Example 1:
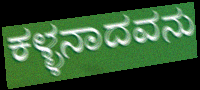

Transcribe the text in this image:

ಕಳ್ಳನಾದವನು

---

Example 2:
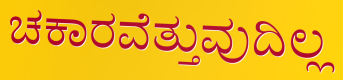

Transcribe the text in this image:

ಚಕಾರವೆತ್ತುವುದಿಲ್ಲ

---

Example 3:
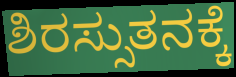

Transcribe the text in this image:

ಶಿರಸ್ಸುತನಕ್ಕೆ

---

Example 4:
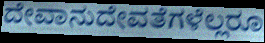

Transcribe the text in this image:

ದೇವಾನುದೇವತೆಗಳೆಲ್ಲರೂ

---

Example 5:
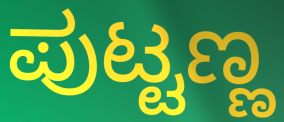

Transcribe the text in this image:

ಪುಟ್ಟಣ್ಣ